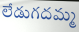
లేడుగదమ్మ